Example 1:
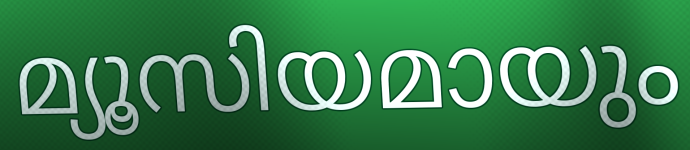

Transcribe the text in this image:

മ്യൂസിയമായും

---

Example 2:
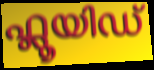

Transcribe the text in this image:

ഫ്ലൂയിഡ്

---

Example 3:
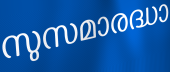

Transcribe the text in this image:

സുസമാരദ്ധാ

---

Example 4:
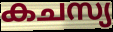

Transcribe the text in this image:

കചസ്യ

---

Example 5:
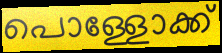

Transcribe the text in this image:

പൊള്ളോക്ക്